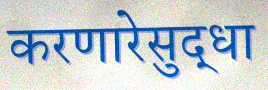
करणारेसुद्धा